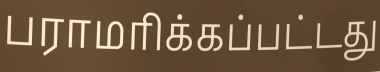
பராமரிக்கப்பட்டது